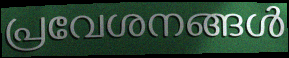
പ്രവേശനങ്ങൾ